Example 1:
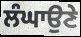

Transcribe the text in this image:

ਲੰਘਾਉਣੇ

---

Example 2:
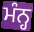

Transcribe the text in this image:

ਮੰਨ੍ਹ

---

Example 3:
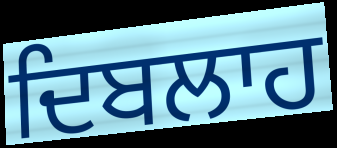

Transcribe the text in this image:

ਦਿਬਲਾਹ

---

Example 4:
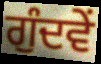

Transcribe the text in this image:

ਗੁੰਦਵੇਂ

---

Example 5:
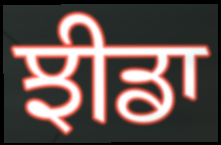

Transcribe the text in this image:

ਝੀਡਾ